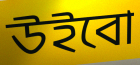
উইবো